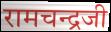
रामचन्द्रजी